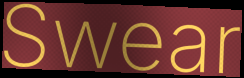
Swear